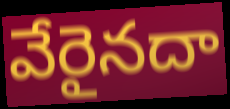
వేరైనదా